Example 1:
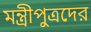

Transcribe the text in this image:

মন্ত্রীপুত্রদের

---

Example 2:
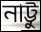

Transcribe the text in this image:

নাট্টু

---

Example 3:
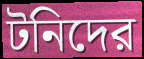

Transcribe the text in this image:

টনিদের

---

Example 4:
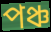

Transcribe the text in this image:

পঞ্চ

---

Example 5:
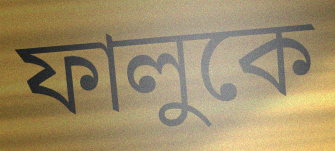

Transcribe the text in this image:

ফালুকে